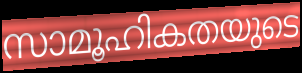
സാമൂഹികതയുടെ